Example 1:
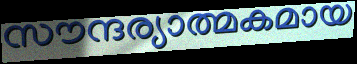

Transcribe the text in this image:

സൗന്ദര്യാത്മകമായ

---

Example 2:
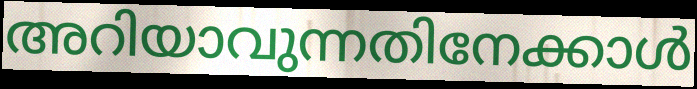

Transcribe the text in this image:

അറിയാവുന്നതിനേക്കാൾ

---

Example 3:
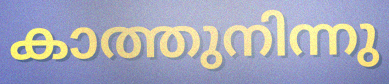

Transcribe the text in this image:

കാത്തുനിന്നു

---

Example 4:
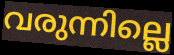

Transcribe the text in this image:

വരുന്നില്ലെ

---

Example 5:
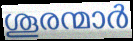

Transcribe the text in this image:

ശൂരന്മാർ